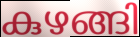
കുഴങ്ങി